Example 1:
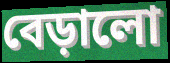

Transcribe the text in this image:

বেড়ালো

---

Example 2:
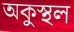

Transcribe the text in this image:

অকুস্থল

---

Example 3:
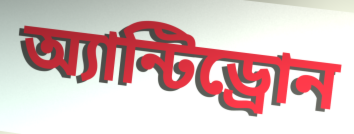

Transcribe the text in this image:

অ্যান্টিড্রোন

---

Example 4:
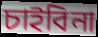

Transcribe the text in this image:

চাইবিনা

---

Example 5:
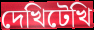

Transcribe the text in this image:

দেখিটেখি